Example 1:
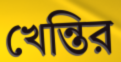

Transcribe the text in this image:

খেন্তির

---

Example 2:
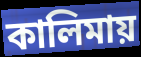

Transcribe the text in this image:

কালিমায়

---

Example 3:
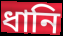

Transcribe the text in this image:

ধানি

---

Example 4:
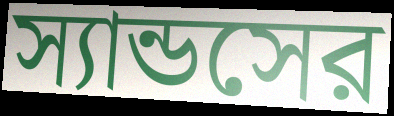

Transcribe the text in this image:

স্যান্ডসের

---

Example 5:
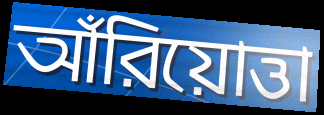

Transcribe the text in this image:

আঁরিয়োত্তা